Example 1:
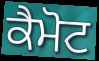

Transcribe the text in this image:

ਕੈਮੋਟ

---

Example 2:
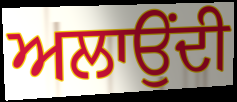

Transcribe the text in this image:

ਅਲਾਉਂਦੀ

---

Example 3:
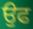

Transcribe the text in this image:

ਉਫ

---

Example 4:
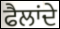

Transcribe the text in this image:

ਫੈਲਾਂਦੇ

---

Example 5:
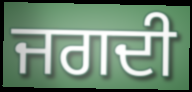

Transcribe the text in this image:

ਜਗਦੀ